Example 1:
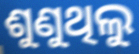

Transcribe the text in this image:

ଶୁଣୁଥିଲୁ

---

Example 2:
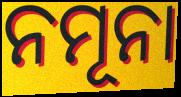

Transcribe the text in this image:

ନମୂନା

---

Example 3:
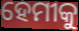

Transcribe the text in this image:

ହେମୀକୁ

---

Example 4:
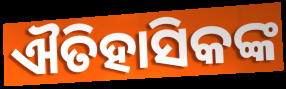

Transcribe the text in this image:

ଐତିହାସିକଙ୍କ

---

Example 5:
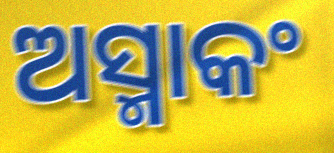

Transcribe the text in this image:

ଅସ୍ମାକଂ